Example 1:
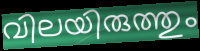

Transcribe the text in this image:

വിലയിരുത്തും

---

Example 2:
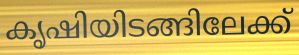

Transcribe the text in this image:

കൃഷിയിടങ്ങിലേക്ക്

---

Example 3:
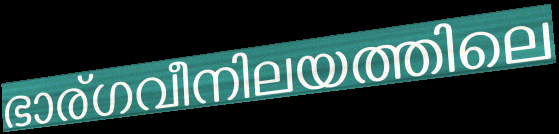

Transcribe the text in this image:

ഭാര്ഗവീനിലയത്തിലെ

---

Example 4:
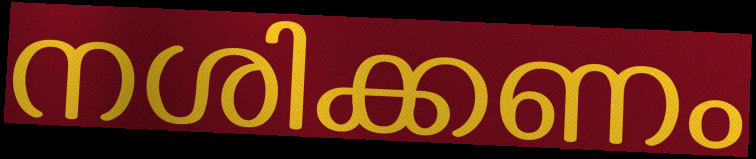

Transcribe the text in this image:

നശിക്കണം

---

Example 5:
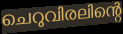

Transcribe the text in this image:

ചെറുവിരലിന്റെ